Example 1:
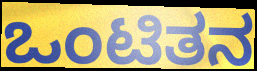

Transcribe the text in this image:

ಒಂಟಿತನ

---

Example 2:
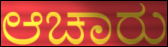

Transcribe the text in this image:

ಆಚಾರು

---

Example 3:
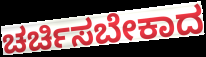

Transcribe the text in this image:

ಚರ್ಚಿಸಬೇಕಾದ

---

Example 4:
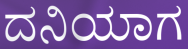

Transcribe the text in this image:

ದನಿಯಾಗ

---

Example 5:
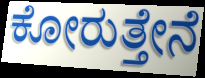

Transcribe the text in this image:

ಕೋರುತ್ತೇನೆ